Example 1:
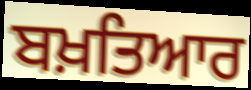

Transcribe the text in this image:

ਬਖ਼ਤਿਆਰ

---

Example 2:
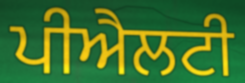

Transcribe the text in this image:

ਪੀਐਲਟੀ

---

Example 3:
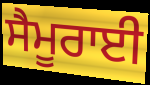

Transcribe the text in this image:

ਸੈਮੂਰਾਈ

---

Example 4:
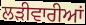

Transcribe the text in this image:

ਲੜੀਵਾਰੀਆਂ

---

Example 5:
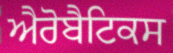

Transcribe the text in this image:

ਐਰੋਬੈਟਿਕਸ